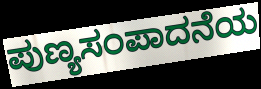
ಪುಣ್ಯಸಂಪಾದನೆಯ